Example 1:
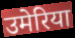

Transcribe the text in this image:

उमेरिया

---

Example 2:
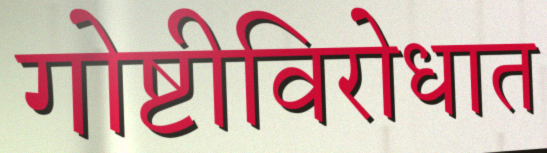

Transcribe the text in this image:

गोष्टीविरोधात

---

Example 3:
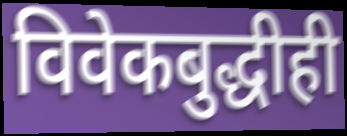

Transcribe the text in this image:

विवेकबुद्धीही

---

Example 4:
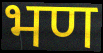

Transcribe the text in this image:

भण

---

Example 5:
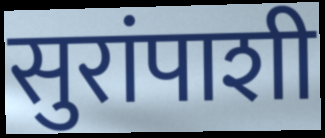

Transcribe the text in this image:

सुरांपाशी